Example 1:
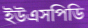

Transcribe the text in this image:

ইউএসপিডি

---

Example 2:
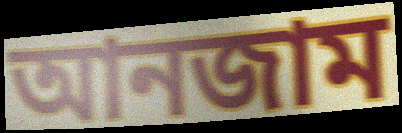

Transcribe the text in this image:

আনজাম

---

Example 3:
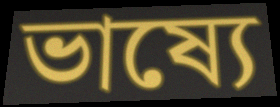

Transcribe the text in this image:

ভাষ্যে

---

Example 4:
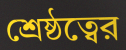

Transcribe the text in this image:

শ্রেষ্ঠত্বের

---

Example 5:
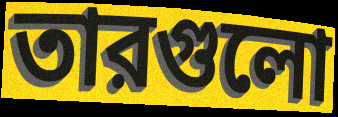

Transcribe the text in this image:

তারগুলো